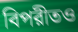
বিপরীতও